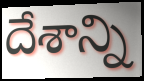
దేశాన్ని